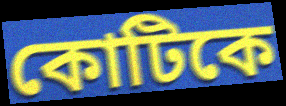
কোটিকে